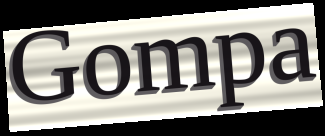
Gompa